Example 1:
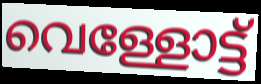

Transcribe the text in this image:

വെള്ളോട്ട്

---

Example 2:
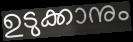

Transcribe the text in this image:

ഉടുക്കാനും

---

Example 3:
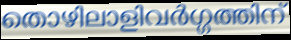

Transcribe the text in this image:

തൊഴിലാളിവർഗ്ഗത്തിന്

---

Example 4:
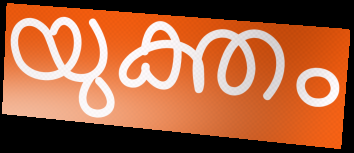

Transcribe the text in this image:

യുക്തം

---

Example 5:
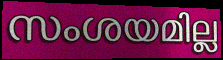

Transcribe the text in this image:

സംശയമില്ല